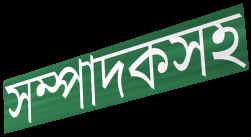
সম্পাদকসহ